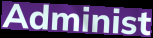
Administ